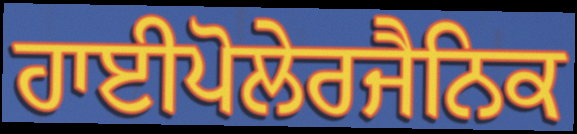
ਹਾਈਪੋਲੇਰਜੈਨਿਕ